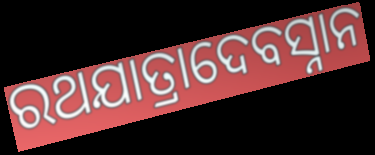
ରଥଯାତ୍ରାଦେବସ୍ନାନ